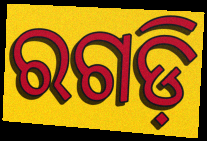
ରଗଡ଼ି